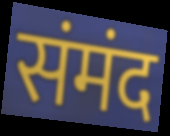
संमंद